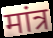
मांत्र